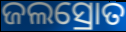
ଜଲସ୍ରୋତ